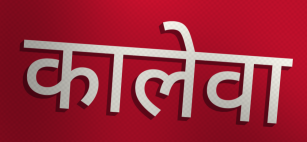
कालेवा